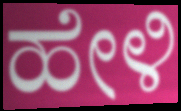
ಹೇಳಿ